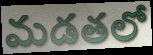
మడతలో